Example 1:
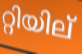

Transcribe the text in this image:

റ്റിയില്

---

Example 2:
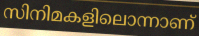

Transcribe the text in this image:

സിനിമകളിലൊന്നാണ്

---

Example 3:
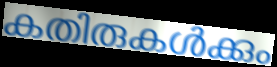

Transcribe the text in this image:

കതിരുകൾക്കും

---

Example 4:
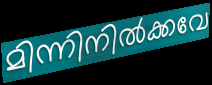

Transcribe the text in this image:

മിന്നിനിൽക്കവേ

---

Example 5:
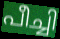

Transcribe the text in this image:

പീച്ചി